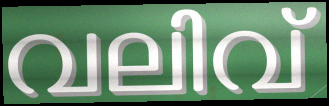
വലിവ്